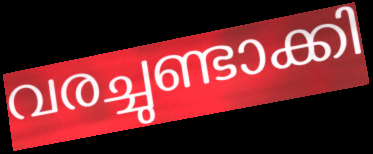
വരച്ചുണ്ടാക്കി